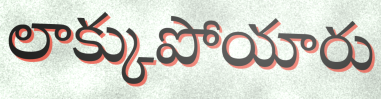
లాక్కుపోయారు